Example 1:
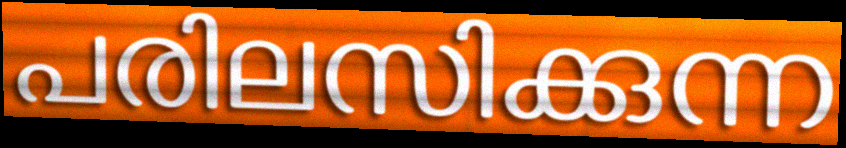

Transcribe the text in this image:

പരിലസിക്കുന്ന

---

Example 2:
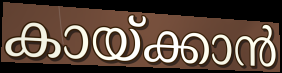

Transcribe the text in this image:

കായ്ക്കാൻ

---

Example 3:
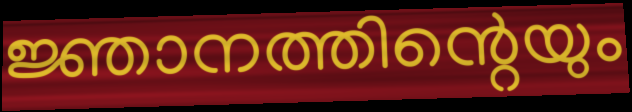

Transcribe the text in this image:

ജ്ഞാനത്തിന്റെയും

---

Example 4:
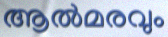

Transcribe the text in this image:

ആൽമരവും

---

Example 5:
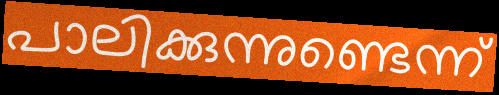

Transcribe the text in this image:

പാലിക്കുന്നുണ്ടെന്ന്